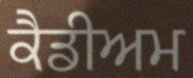
ਕੈਡੀਅਮ